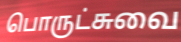
பொருட்சுவை